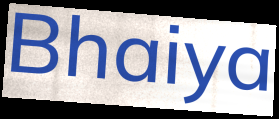
Bhaiya